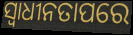
ସ୍ୱାଧୀନତାପରେ